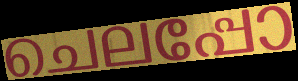
ചെലപ്പോ